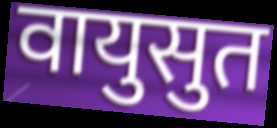
वायुसुत